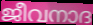
ജീവനാദ